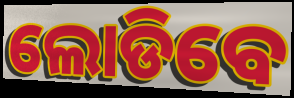
ଲୋଡିବେ